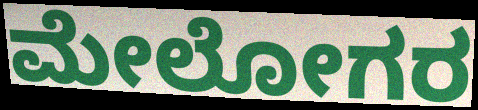
ಮೇಲೋಗರ